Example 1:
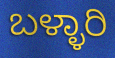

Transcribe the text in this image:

ಬಳ್ಳಾರಿ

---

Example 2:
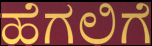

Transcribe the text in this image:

ಹೆಗಲಿಗೆ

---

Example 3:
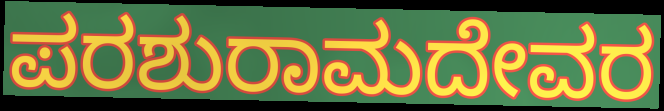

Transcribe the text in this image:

ಪರಶುರಾಮದೇವರ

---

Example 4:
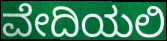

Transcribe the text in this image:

ವೇದಿಯಲಿ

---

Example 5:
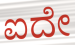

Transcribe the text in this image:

ಐದೇ